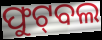
ଫୁଟ୍‌ବଲ